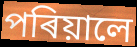
পৰিয়ালে